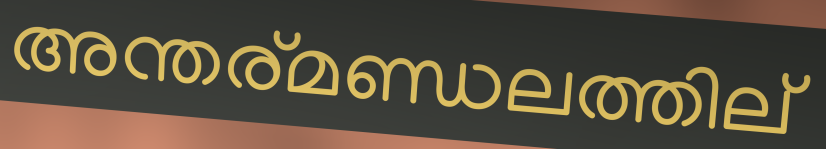
അന്തര്മണ്ഡലത്തില്